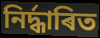
নিৰ্দ্ধাৰিত